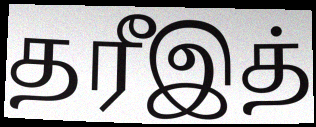
தரீஇத்